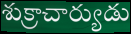
శుక్రాచార్యుడు